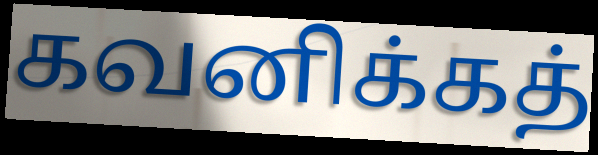
கவனிக்கத்